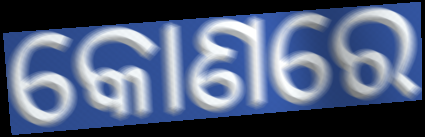
କୋଣରେ